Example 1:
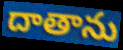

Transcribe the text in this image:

దాతాను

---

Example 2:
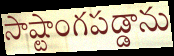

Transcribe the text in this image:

సాష్టాంగపడ్డాను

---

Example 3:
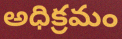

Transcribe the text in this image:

అధిక్రమం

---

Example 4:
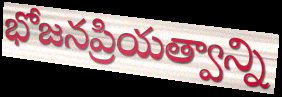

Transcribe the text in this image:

భోజనప్రియత్వాన్ని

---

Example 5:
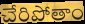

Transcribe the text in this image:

చేరిపోతాం